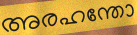
അരഹന്തോ